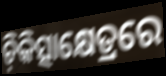
ଚ଼ିକିତ୍ସାକ୍ଷେତ୍ରରେ